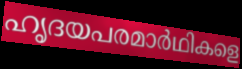
ഹൃദയപരമാർഥികളെ